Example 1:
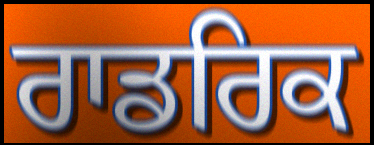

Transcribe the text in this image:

ਰਾਡਰਿਕ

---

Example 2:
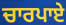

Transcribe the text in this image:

ਚਾਰਪਾਏ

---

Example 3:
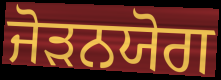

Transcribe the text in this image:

ਜੋੜਨਯੋਗ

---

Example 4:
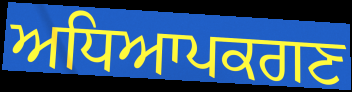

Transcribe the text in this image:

ਅਧਿਆਪਕਗਣ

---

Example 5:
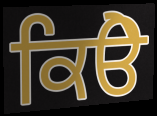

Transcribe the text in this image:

ਕਿੳੇ